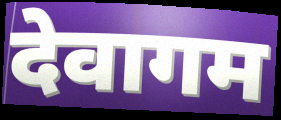
देवागम